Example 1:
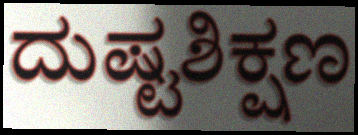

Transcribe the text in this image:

ದುಷ್ಟಶಿಕ್ಷಣ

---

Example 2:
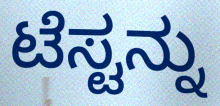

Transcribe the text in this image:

ಟೆಸ್ಟನ್ನು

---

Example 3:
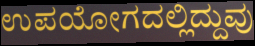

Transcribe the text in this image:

ಉಪಯೋಗದಲ್ಲಿದ್ದುವು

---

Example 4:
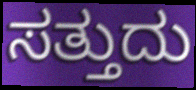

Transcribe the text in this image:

ಸತ್ತುದು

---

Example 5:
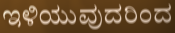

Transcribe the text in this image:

ಇಳಿಯುವುದರಿಂದ